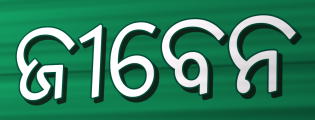
ଜୀବେନ